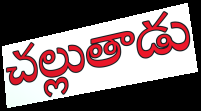
చల్లుతాడు